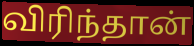
விரிந்தான்